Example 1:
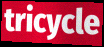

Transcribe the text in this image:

tricycle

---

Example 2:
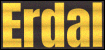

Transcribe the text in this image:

Erdal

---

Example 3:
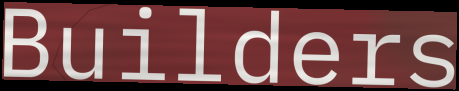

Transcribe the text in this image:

Builders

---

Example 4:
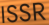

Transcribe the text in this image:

ISSR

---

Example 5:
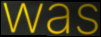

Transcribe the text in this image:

was